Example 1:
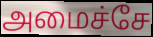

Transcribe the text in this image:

அமைச்சே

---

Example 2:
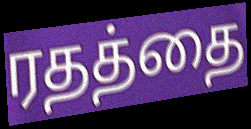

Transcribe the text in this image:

ரதத்தை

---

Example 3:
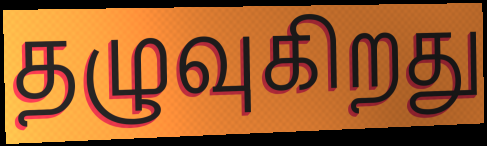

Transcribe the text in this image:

தழுவுகிறது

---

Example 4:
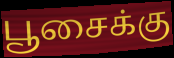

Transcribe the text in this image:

பூசைக்கு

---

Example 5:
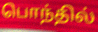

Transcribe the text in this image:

பொந்தில்